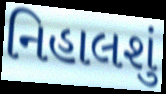
નિહાલશું